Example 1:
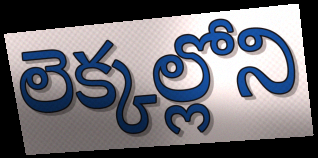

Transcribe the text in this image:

లెక్కల్లోని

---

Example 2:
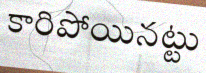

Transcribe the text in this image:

కారిపోయినట్టు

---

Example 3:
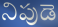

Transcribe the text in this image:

నిపుడె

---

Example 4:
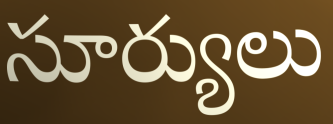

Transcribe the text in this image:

సూర్యులు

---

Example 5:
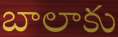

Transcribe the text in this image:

బాలాకు